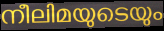
നീലിമയുടെയും